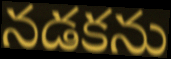
నడకను